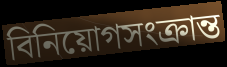
বিনিয়োগসংক্রান্ত